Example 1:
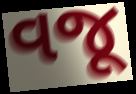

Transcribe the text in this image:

વજૂ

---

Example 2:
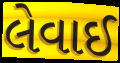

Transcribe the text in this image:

લેવાઈ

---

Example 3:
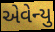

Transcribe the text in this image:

એવેન્યુ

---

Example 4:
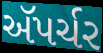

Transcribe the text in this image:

ઍપર્ચર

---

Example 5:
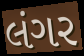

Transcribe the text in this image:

લંગર